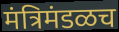
मंत्रिमंडळच